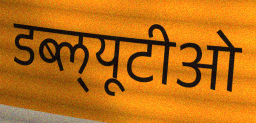
डब्ल्यूटीओ